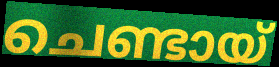
ചെണ്ടായ്